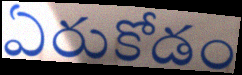
ఏరుకోడం